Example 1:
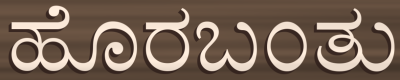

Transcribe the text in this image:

ಹೊರಬಂತು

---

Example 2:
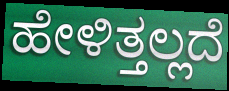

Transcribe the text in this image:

ಹೇಳಿತ್ತಲ್ಲದೆ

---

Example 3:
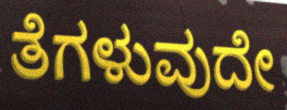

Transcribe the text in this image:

ತೆಗಳುವುದೇ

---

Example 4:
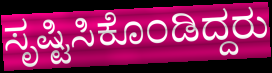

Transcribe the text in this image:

ಸೃಷ್ಟಿಸಿಕೊಂಡಿದ್ದರು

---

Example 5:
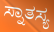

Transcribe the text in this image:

ಸ್ನಾತಸ್ಯ